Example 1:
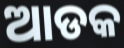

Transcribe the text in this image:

ଆଡକ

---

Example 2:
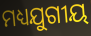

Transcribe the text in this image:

ମଧ୍ଯଯୁଗୀୟ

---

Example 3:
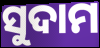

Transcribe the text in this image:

ସୁଦାମ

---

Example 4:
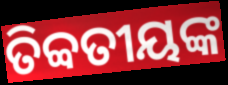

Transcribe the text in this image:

ତିବ୍ବତୀୟଙ୍କ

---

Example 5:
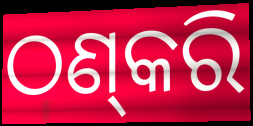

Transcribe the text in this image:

ଠଣ୍‌କରି